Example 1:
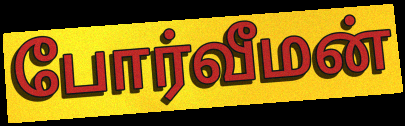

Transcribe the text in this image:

போர்வீமன்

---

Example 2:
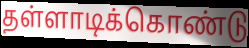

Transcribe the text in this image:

தள்ளாடிக்கொண்டு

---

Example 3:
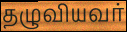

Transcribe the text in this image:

தழுவியவர்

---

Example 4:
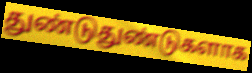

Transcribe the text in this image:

துண்டுதுண்டுகளாக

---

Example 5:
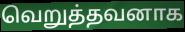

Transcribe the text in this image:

வெறுத்தவனாக